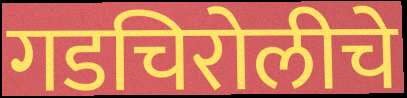
गडचिरोलीचे